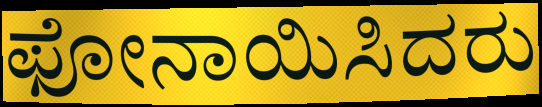
ಫೋನಾಯಿಸಿದರು